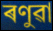
ৰণুৱা